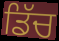
ਡਿੱਚ